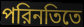
পরিনতিতে